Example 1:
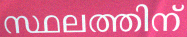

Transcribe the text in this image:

സ്ഥലത്തിന്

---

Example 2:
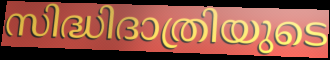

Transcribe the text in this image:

സിദ്ധിദാത്രിയുടെ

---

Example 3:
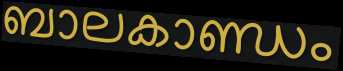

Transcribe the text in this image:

ബാലകാണ്ഡം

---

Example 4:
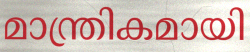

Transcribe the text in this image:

മാന്ത്രികമായി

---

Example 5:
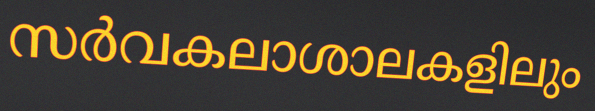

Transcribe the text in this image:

സർവകലാശാലകളിലും